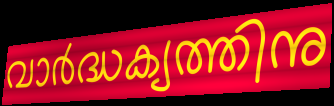
വാർദ്ധക്യത്തിനു